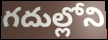
గదుల్లోని